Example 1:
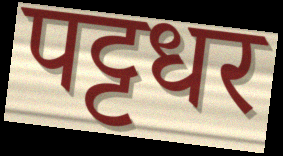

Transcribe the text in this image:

पट्टधर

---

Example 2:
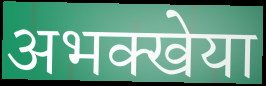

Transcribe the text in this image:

अभक्खेया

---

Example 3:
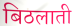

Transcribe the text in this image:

बिठलाती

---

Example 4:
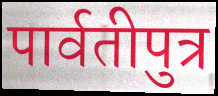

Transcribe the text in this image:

पार्वतीपुत्र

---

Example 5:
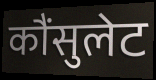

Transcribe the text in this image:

कौंसुलेट